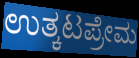
ಉತ್ಕಟಪ್ರೇಮ